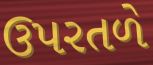
ઉપરતળે